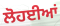
ਲੋਹਈਆਂ